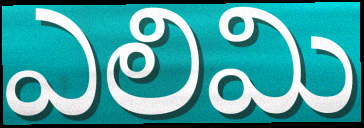
ఎలిమి